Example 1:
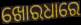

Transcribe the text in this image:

ଖୋରଧାରେ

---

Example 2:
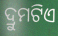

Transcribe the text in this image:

ଦ୍ରୁମଟିଏ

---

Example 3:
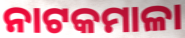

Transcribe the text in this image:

ନାଟକମାଳା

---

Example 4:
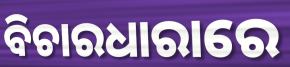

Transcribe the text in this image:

ବିଚାରଧାରାରେ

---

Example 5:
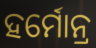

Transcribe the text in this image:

ହର୍ମୋନ୍ର